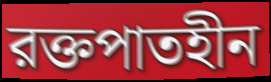
রক্তপাতহীন